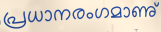
പ്രധാനരംഗമാണു്